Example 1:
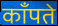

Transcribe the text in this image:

काँपते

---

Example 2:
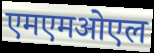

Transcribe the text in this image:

एमएमओएल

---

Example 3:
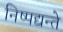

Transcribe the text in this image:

निष्पद्यन्ते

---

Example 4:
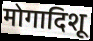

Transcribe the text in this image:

मोगादिशू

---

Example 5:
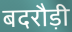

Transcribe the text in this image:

बदरौड़ी